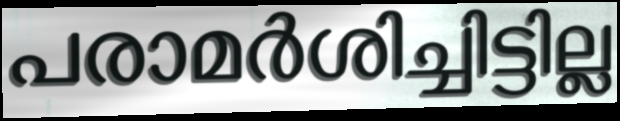
പരാമർശിച്ചിട്ടില്ല